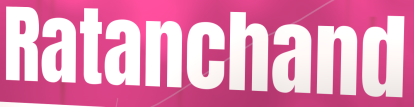
Ratanchand